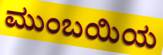
ಮುಂಬಯಿಯ